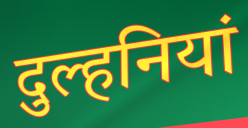
दुल्हनियां